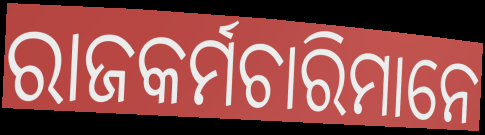
ରାଜକର୍ମଚାରିମାନେ